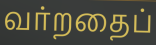
வர்றதைப்